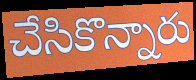
చేసికొన్నారు